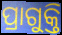
ପ୍ରାଗୁକ୍ତି